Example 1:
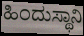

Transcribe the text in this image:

ಹಿಂದುಸ್ಥಾನಿ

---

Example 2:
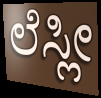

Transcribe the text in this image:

ಲೆಸ್ಲೀ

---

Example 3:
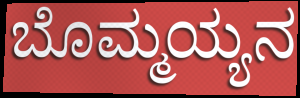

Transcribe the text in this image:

ಬೊಮ್ಮಯ್ಯನ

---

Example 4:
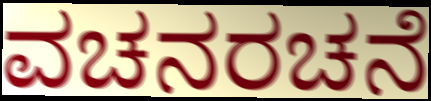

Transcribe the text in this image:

ವಚನರಚನೆ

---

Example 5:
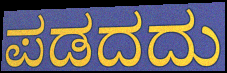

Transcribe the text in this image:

ಪಡದದು